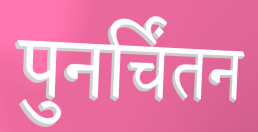
पुनर्चिंतन